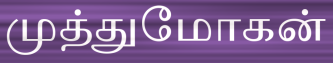
முத்துமோகன்